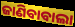
ଜାଣିବାବାଲା